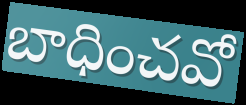
బాధించవో